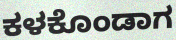
ಕಳಕೊಂಡಾಗ